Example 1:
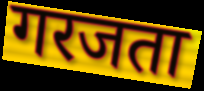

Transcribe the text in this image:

गरजता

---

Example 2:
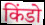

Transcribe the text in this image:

किंडो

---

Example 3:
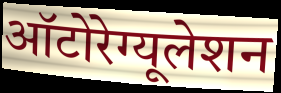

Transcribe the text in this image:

ऑटोरेग्यूलेशन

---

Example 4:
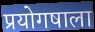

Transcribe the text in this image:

प्रयोगषाला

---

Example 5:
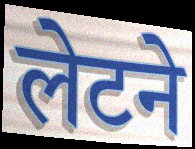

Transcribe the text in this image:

लेटने